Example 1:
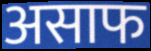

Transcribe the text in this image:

असाफ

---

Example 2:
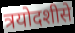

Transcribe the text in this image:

त्रयोदशीसे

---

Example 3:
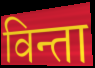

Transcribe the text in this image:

विन्ता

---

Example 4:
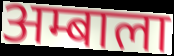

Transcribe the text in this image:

अम्बाला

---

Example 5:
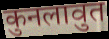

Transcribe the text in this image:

कुनलावुत